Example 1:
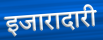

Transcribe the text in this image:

इजारादारी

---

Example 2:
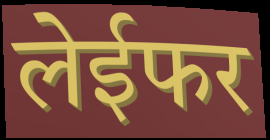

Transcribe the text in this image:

लेईफर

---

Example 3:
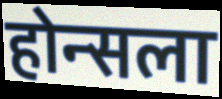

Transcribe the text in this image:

होन्सला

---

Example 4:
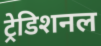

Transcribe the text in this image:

ट्रेडिशनल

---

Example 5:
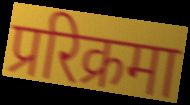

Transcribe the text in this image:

प्ररिक्रमा